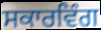
ਸਕਾਰਵਿੰਗ